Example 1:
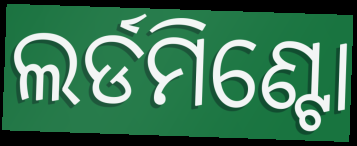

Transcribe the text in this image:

ଲର୍ଡମିଣ୍ଟୋ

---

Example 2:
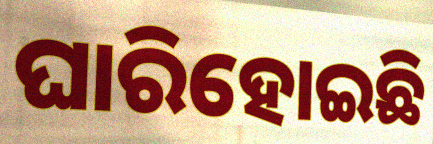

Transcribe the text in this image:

ଘାରିହୋଇଛି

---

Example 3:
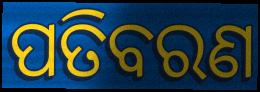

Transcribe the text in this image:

ପତିବରଣ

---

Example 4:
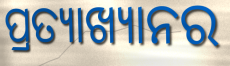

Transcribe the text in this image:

ପ୍ରତ୍ୟାଖ୍ୟାନର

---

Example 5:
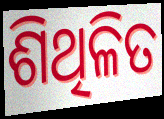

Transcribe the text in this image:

ଶିଥିଳିତ